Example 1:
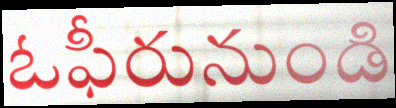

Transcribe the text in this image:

ఓఫీరునుండి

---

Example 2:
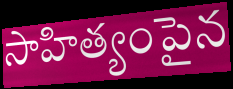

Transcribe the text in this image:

సాహిత్యంపైన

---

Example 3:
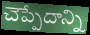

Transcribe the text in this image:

చెప్పేదాన్ని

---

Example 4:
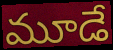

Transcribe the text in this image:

మూడే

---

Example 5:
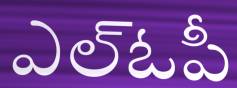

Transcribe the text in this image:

ఎల్ఓపీ